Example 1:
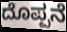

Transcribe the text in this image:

ದೊಪ್ಪನೆ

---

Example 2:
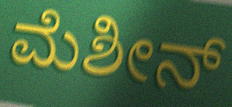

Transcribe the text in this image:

ಮೆಶೀನ್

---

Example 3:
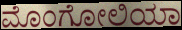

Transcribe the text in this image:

ಮೊಂಗೋಲಿಯಾ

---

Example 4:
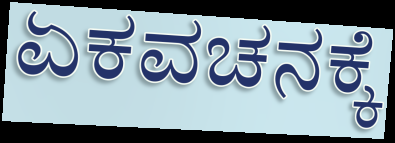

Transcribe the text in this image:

ಏಕವಚನಕ್ಕೆ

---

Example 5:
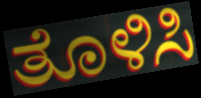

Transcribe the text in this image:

ತೊಳಿಸಿ